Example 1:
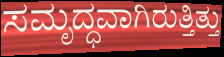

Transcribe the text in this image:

ಸಮೃದ್ಧವಾಗಿರುತ್ತಿತ್ತು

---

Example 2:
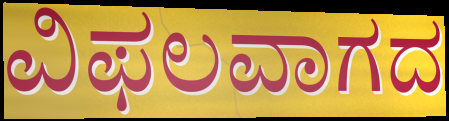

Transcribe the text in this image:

ವಿಫಲವಾಗದ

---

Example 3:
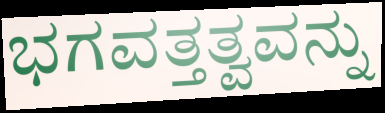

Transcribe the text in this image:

ಭಗವತ್ತತ್ವವನ್ನು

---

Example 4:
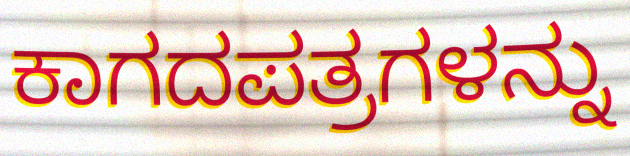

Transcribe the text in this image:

ಕಾಗದಪತ್ರಗಳನ್ನು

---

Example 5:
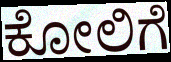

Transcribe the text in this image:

ಕೋಲಿಗೆ